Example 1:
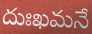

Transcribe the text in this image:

దుఃఖమనే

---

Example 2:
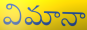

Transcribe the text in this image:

విమానా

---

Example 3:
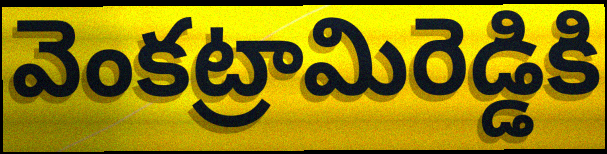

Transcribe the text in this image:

వెంకట్రామిరెడ్డికి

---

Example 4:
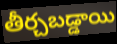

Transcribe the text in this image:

తీర్చబడ్డాయి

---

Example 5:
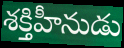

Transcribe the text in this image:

శక్తిహీనుడు